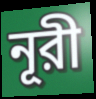
নূরী